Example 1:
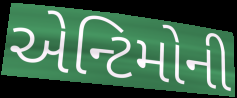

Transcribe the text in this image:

એન્ટિમોની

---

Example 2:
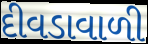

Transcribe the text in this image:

દીવડાવાળી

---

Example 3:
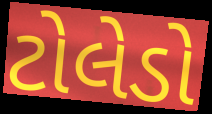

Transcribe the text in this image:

ટોલેડો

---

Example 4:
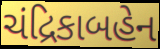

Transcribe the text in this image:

ચંદ્રિકાબહેન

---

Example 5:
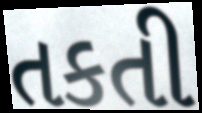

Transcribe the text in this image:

તકતી